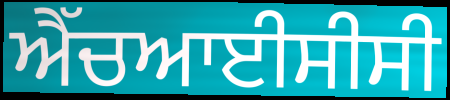
ਐੱਚਆਈਸੀਸੀ